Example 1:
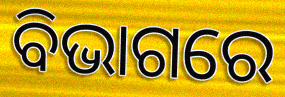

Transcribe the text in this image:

ବିଭାଗରେ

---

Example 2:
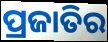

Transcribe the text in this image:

ପ୍ରଜାତିର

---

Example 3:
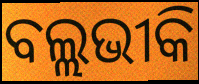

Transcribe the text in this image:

ବଲ୍ଲଭୀକି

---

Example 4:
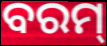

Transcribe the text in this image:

ବରମ୍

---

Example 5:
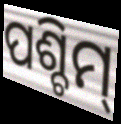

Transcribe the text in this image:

ପଶ୍ଚିମ୍